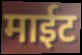
माईट